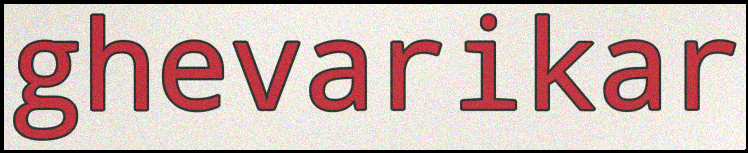
ghevarikar